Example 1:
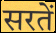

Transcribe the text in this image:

सरतें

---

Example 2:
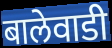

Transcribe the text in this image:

बालेवाडी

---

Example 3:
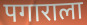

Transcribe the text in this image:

पगाराला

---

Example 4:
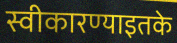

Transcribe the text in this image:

स्वीकारण्याइतके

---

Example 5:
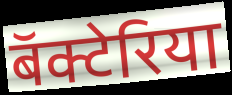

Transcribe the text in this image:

बॅक्टेरिया